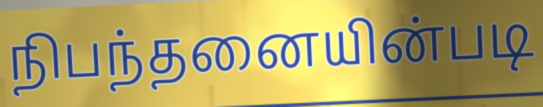
நிபந்தனையின்படி